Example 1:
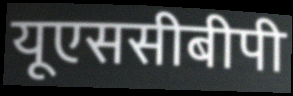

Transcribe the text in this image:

यूएससीबीपी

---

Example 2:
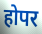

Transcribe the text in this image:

होपर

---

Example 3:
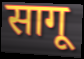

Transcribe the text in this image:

सागू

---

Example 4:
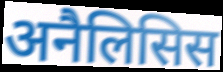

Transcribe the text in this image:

अनैलिसिस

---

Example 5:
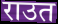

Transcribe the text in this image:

राउत